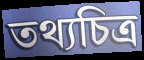
তথ্যচিত্ৰ